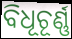
ବିଧୂଚୂର୍ଣ୍ଣ